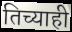
तिच्याही